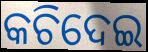
କଚିଦେଇ